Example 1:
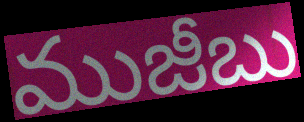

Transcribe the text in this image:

ముజీబు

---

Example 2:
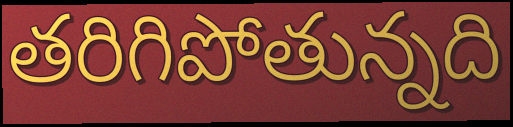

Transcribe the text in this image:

తరిగిపోతున్నది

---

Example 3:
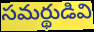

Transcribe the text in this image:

సమర్థుడివి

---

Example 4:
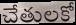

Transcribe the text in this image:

చేతులకో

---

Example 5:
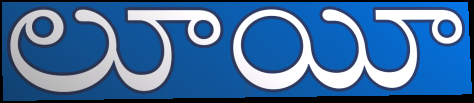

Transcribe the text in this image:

లూయీ